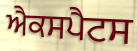
ਐਕਸਪੈਟਸ